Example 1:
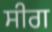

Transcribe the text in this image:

ਸੀਗ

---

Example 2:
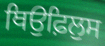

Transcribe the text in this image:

ਥਿਉਫ਼ਿਲੁਸ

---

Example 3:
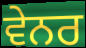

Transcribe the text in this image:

ਵੇਨਰ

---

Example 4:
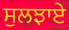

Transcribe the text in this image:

ਸੁਲਝਾਏ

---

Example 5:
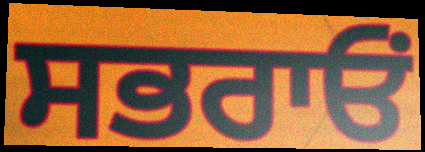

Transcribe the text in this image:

ਸਭਰਾਓਂ